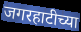
जगरहाटीच्या